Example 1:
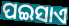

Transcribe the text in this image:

ପଇସାଏ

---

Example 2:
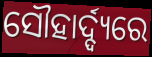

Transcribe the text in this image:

ସୌହାର୍ଦ୍ଦ୍ୟରେ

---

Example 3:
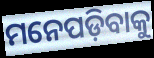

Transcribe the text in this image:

ମନେପଡ଼ିବାକୁ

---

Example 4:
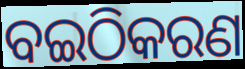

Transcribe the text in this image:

ବଇଠିକରଣ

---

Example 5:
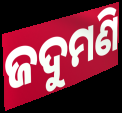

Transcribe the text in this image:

ଜଦୁମଣି